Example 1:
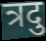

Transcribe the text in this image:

त्रदु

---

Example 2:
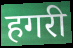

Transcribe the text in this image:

हगरी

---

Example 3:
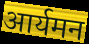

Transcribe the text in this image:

आर्यमन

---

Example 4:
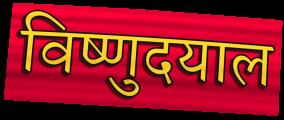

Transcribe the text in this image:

विष्णुदयाल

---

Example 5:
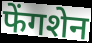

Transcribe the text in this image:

फेंगशेन